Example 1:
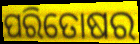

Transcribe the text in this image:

ପରିତୋଷର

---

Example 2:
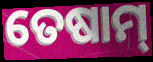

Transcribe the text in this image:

ତେଷାମ୍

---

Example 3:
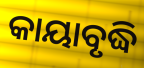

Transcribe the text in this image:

କାୟାବୃଦ୍ଧି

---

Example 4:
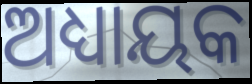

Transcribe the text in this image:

ଅଧ୍ୟାୟକ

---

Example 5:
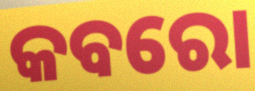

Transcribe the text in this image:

କବରୋ